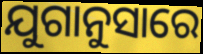
ଯୁଗାନୁସାରେ